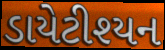
ડાયેટીશ્યન